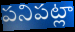
పనిపట్లా